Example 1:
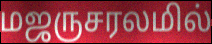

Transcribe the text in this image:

மஜருசரலமில்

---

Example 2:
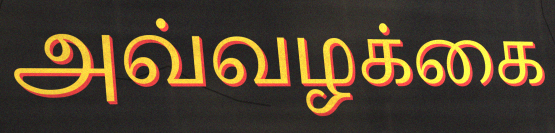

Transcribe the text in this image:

அவ்வழக்கை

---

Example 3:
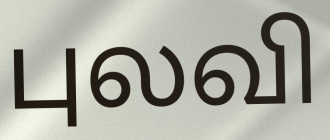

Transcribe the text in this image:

புலவி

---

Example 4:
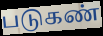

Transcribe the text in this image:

படுகண்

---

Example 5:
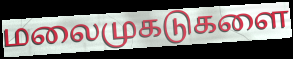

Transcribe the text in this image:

மலைமுகடுகளை